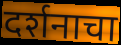
दर्शनाचा